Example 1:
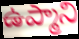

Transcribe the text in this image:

ఉప్మాని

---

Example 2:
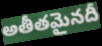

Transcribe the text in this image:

అతీతమైనదీ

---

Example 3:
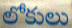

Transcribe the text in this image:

లోకులు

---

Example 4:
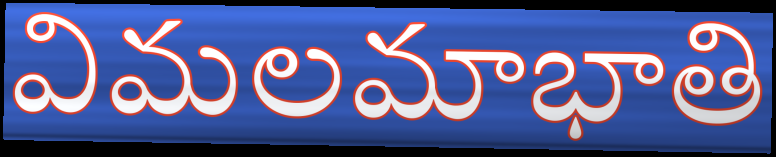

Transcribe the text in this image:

విమలమాభాతి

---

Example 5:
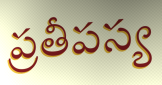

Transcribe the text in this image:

ప్రతీపస్య